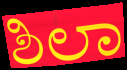
ಶಿಲಾ